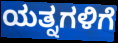
ಯತ್ನಗಳಿಗೆ